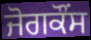
ਜੋਗਕੌਂਸ